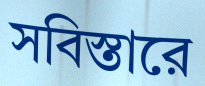
সবিস্তারে